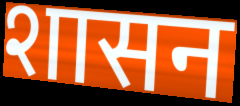
शासन